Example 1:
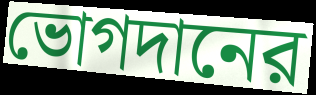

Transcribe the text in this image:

ভোগদানের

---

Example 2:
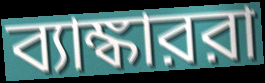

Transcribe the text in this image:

ব্যাঙ্কাররা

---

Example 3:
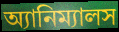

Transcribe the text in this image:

অ্যানিম্যালস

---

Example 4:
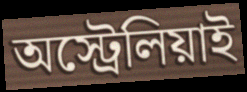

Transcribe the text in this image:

অস্ট্রেলিয়াই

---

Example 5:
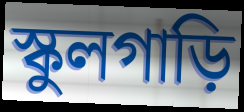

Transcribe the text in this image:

স্কুলগাড়ি